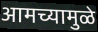
आमच्यामुळे